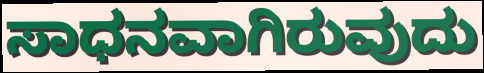
ಸಾಧನವಾಗಿರುವುದು